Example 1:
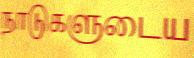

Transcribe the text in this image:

நாடுகளுடைய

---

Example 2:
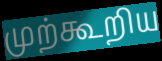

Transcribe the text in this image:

முற்கூறிய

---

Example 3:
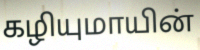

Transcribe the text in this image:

கழியுமாயின்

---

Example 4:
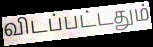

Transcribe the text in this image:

விடப்பட்டதும்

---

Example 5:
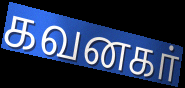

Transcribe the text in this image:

கவனகர்